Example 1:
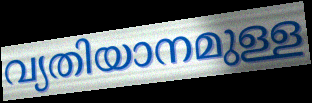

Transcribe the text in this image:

വ്യതിയാനമുള്ള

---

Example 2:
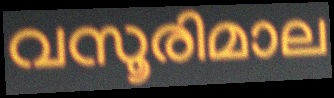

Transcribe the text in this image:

വസൂരിമാല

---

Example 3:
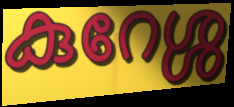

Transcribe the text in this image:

കുറേശ്ശ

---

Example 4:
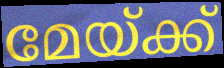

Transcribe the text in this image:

മേയ്ക്ക്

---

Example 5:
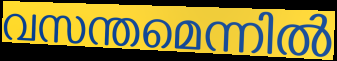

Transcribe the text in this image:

വസന്തമെന്നിൽ